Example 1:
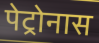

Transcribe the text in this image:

पेट्रोनास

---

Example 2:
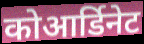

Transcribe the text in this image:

कोआर्डिनेट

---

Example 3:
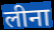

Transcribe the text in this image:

लीना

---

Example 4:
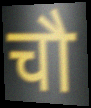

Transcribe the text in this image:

चौ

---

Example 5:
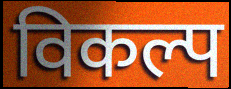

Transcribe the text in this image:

विकल्‍प